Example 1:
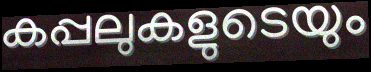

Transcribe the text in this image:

കപ്പലുകളുടെയും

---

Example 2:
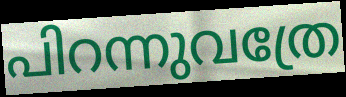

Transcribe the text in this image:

പിറന്നുവത്രേ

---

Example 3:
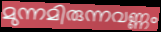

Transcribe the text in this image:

മുന്നമിരുന്നവണ്ണം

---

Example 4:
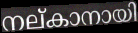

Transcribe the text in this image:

നല്കാനായി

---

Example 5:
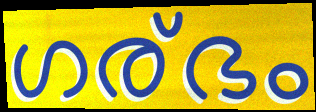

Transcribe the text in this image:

ഗര്ഭം